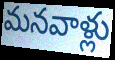
మనవాళ్లు